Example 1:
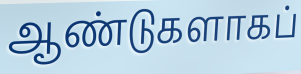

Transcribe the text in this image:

ஆண்டுகளாகப்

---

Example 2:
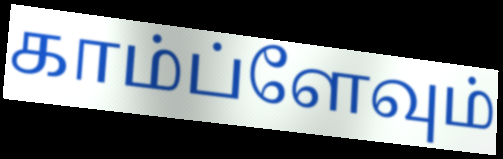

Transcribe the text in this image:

காம்ப்ளேவும்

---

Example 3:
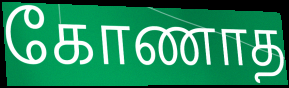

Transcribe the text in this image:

கோணாத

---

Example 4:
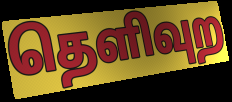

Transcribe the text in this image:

தெளிவுற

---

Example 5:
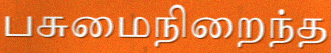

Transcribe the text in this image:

பசுமைநிறைந்த